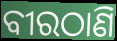
ବୀରଠାଣି